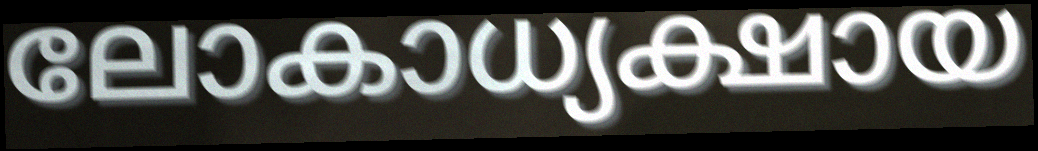
ലോകാധ്യക്ഷായ